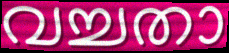
വച്ചതാ